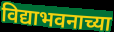
विद्याभवनाच्या